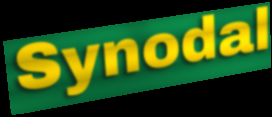
Synodal